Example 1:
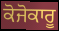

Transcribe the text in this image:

ਕੋਜੋਕਾਰੂ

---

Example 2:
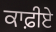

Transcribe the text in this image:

ਕਾਫ਼ੀਏ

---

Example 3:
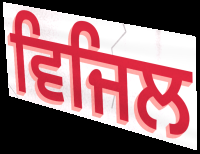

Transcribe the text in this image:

ਵਿਜਿਲ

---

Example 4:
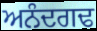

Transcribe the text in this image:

ਅਨੰਦਗਢ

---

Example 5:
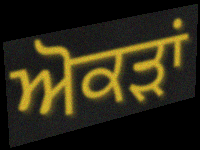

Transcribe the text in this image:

ਅੋਕੜਾਂ